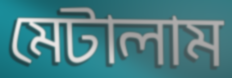
মেটালাম